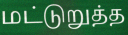
மட்டுறுத்த